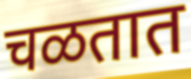
चळतात